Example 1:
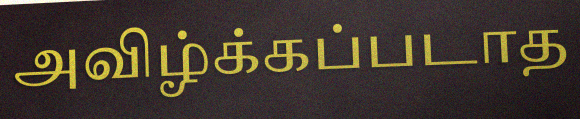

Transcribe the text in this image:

அவிழ்க்கப்படாத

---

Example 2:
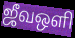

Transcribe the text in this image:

ஜீவஒளி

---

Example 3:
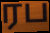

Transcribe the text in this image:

ரப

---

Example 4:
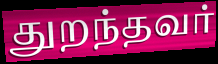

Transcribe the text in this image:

துறந்தவர்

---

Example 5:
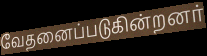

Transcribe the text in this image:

வேதனைப்படுகின்றனர்